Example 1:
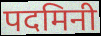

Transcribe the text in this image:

पदमिनी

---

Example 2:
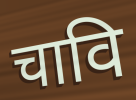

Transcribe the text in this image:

चावि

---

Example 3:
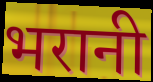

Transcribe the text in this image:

भरानी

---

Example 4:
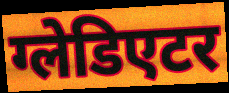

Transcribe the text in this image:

ग्लेडिएटर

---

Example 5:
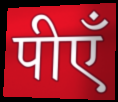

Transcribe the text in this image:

पीएँ